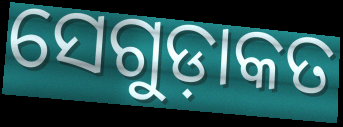
ସେଗୁଡ଼ାକତ